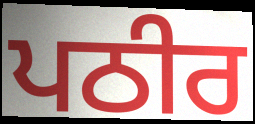
ਪਠੀਰ